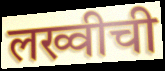
लख्वीची